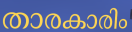
താരകാരിം